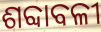
ଶବ୍ଦାବଳୀ